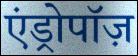
एंड्रोपॉज़